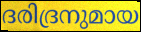
ദരിദ്രനുമായ